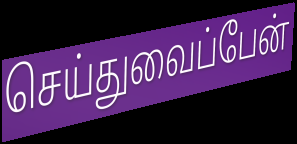
செய்துவைப்பேன்